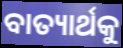
ବାତ୍ୟାର୍ଥକୁ